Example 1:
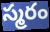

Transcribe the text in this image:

స్మరం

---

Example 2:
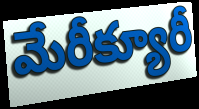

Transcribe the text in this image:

మేరీక్యూరీ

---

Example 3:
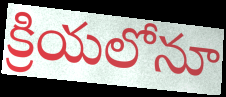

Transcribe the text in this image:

క్రియలోనూ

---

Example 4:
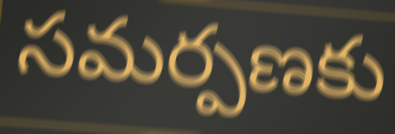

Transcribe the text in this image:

సమర్పణకు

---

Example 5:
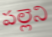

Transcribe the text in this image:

పల్లెని